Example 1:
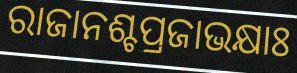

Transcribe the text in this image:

ରାଜାନଶ୍ଚପ୍ରଜାଭକ୍ଷାଃ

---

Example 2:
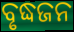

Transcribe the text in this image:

ବୃଦ୍ଧଜନ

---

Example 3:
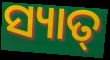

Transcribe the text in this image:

ସ୍ୟାତ୍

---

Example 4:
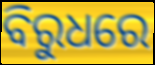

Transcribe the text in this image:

ବିରୁଧରେ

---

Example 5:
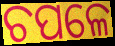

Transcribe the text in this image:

ଚପଳେ